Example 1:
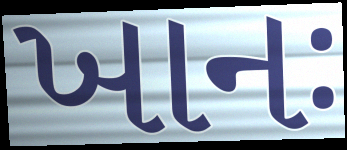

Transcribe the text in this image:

ખાનઃ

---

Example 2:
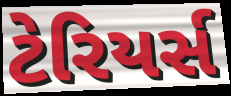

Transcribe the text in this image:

ટેરિયર્સ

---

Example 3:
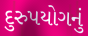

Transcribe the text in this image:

દુરુપયોગનું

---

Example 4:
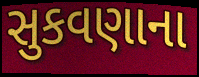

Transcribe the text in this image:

સુકવણાના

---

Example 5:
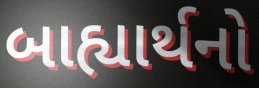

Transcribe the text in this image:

બાહ્યાર્થનો